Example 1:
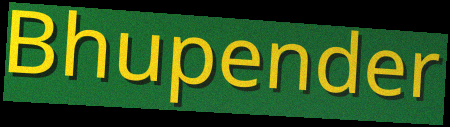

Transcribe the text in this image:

Bhupender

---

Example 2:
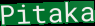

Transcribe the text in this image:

Pitaka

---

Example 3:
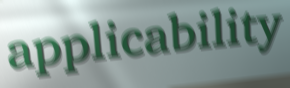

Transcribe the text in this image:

applicability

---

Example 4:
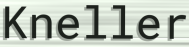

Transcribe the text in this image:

Kneller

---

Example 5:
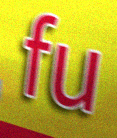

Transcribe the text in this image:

fu